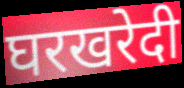
घरखरेदी